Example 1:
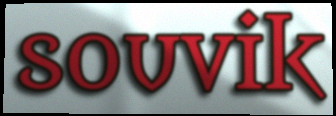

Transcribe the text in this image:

souvik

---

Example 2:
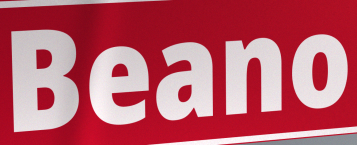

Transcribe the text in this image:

Beano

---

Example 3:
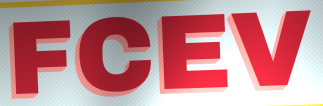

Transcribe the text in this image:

FCEV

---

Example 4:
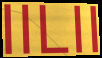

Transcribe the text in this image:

IILII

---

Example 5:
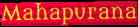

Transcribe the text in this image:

Mahapurana